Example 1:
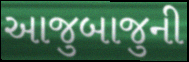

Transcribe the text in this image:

આજુબાજુની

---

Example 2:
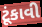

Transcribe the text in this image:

ટૂંકાવી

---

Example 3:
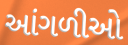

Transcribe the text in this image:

આંગળીઓ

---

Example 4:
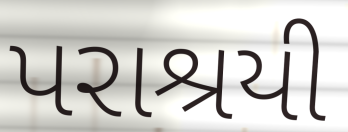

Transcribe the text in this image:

પરાશ્રયી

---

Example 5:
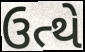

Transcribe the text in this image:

ઉત્થે